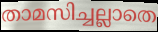
താമസിച്ചല്ലാതെ